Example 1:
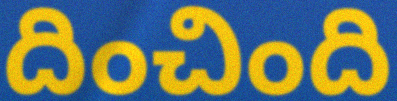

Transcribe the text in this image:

దించింది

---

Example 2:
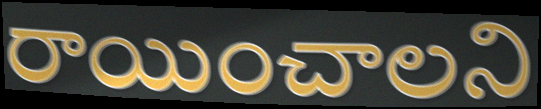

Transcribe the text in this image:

రాయించాలని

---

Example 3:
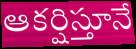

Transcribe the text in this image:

ఆకర్షిస్తూనే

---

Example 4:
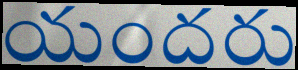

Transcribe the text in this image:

యందరు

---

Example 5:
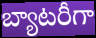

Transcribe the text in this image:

బ్యాటరీగా